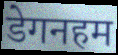
डेगनहम